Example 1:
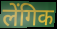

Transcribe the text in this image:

लेंगिक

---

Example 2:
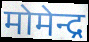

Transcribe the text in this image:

मोमेन्द्र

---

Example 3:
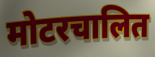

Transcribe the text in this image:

मोटरचालित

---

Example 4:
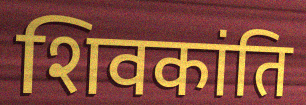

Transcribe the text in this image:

शिवकांति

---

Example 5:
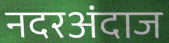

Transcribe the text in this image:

नदरअंदाज